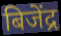
बिजेंद्र